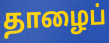
தாழைப்